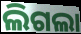
ଲିଗଲା